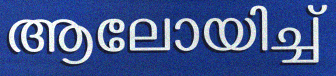
ആലോയിച്ച്